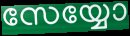
സേയ്യോ